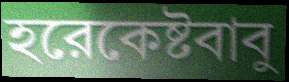
হরেকেষ্টবাবু